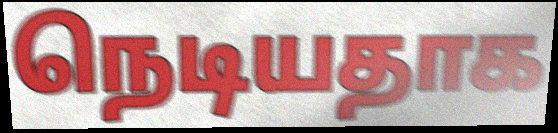
நெடியதாக